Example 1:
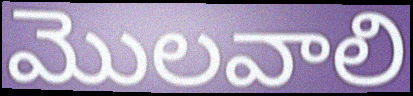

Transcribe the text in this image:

మొలవాలి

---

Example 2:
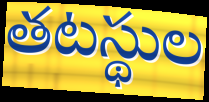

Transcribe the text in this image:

తటస్థుల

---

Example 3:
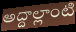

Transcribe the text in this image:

అద్దాల్లాంటి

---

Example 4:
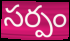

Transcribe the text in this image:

సర్పం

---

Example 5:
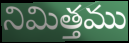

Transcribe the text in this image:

నిమిత్తము